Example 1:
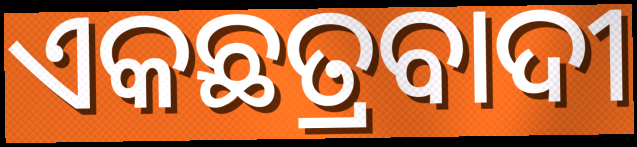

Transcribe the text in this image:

ଏକଛତ୍ରବାଦୀ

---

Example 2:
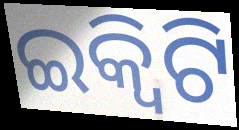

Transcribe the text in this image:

ଇକ୍ବିଟି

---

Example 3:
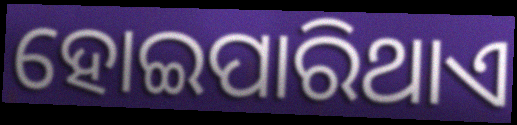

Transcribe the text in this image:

ହୋଇପାରିଥାଏ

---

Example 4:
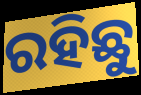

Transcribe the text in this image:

ରହିଛୁ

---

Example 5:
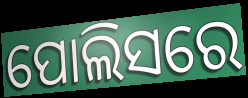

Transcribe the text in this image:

ପୋଲିସରେ